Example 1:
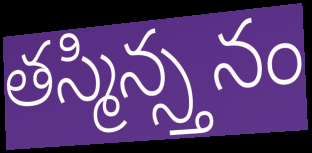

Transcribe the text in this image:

తస్మిన్స్తనం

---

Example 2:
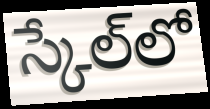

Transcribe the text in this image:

స్కేల్‌లో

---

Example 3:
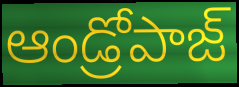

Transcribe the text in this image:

ఆండ్రోపాజ్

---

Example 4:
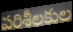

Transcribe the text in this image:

పరిశీలకుల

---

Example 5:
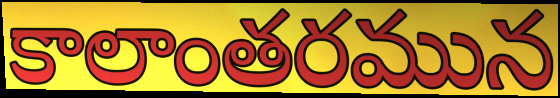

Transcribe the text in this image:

కాలాంతరమున